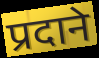
प्रदाने